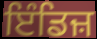
ਇੰਡਿਜ਼